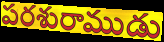
పరశురాముడు